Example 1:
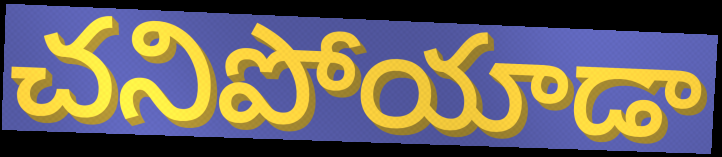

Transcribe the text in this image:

చనిపోయాడా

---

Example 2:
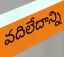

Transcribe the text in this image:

వదిలేదాన్ని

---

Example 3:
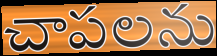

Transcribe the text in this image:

చాపలను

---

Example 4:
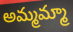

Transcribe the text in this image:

అమ్మమ్మా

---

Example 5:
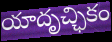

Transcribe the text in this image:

యాదృచ్ఛికం